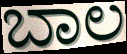
ಬಾಲ